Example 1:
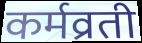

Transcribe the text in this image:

कर्मव्रती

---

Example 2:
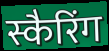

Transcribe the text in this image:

स्कैरिंग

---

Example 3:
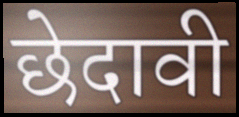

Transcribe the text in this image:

छेदावी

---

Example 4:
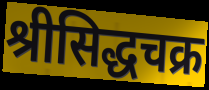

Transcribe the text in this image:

श्रीसिद्धचक्र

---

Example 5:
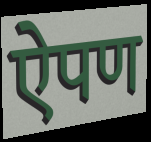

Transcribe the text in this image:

ऐपण